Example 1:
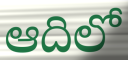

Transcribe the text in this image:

ఆదిలో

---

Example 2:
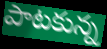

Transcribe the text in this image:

పాటకున్న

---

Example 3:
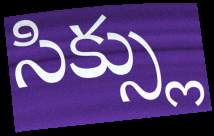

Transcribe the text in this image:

సిక్స్లు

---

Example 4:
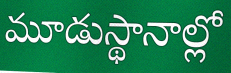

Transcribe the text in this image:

మూడుస్థానాల్లో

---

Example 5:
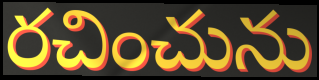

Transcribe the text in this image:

రచించును